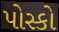
પોસ્કો